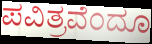
ಪವಿತ್ರವೆಂದೂ